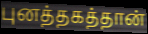
புனத்தகத்தான்